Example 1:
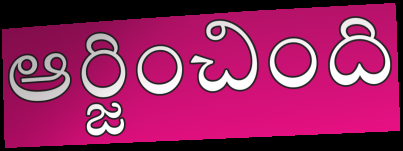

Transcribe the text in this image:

ఆర్జించింది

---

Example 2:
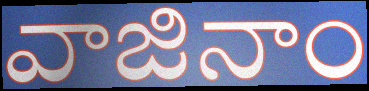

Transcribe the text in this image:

వాజినాం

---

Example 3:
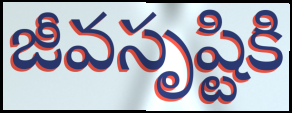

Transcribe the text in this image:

జీవసృష్టికి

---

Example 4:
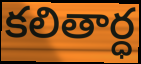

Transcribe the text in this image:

కలితార్ధ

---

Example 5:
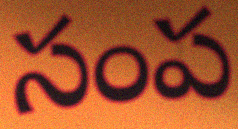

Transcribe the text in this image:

సంప